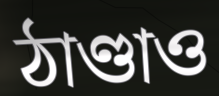
ঠাণ্ডাও